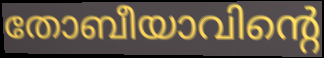
തോബീയാവിന്റെ